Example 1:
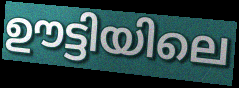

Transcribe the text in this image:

ഊട്ടിയിലെ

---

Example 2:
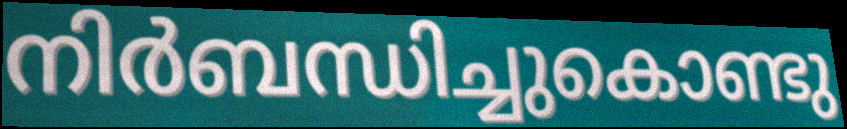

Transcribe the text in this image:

നിർബന്ധിച്ചുകൊണ്ടു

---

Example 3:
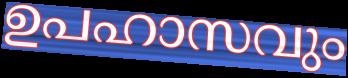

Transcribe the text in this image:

ഉപഹാസവും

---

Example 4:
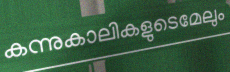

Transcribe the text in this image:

കന്നുകാലികളുടെമേലും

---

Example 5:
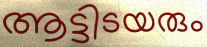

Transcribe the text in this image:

ആട്ടിടയരും